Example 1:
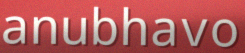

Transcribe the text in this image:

anubhavo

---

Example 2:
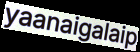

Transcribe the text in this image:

yaanaigalaip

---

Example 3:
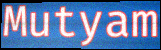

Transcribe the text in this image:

Mutyam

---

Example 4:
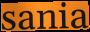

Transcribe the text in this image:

sania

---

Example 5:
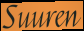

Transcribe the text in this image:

Suuren